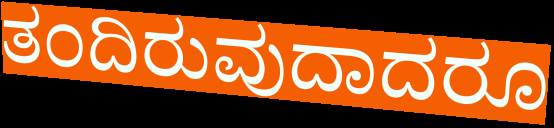
ತಂದಿರುವುದಾದರೂ